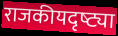
राजकीयदृष्ट्या